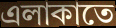
এলাকাতে